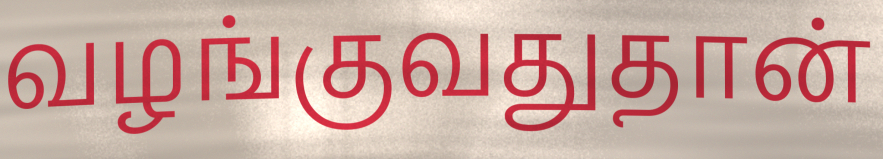
வழங்குவதுதான்